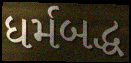
ધર્મબદ્ધ